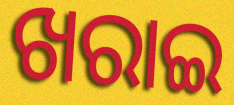
ଖରାଇ